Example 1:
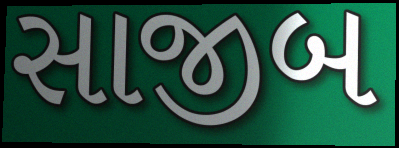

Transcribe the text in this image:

સાજીબ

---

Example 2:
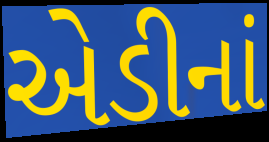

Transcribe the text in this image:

એડીનાં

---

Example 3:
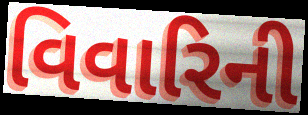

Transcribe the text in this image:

વિવારિની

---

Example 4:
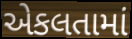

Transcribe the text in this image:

એકલતામાં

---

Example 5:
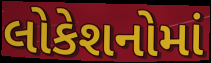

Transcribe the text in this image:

લોકેશનોમાં